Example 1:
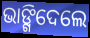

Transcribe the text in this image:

ଭାଙ୍ଗିଦେଲେ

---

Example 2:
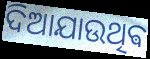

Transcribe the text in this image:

ଦିଆଯାଉଥିଵ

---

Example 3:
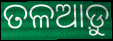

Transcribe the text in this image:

ତଳଆଡ଼ୁ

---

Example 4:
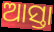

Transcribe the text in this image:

ଆସ୍ତା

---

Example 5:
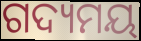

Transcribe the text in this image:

ଗଦ୍ୟମୟ